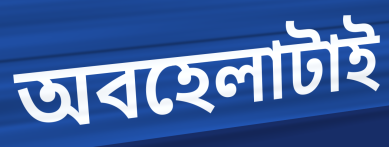
অবহেলাটাই